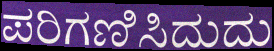
ಪರಿಗಣಿಸಿದುದು